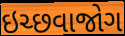
ઇચ્છવાજોગ